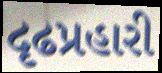
દૃઢપ્રહારી